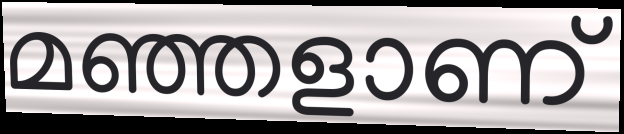
മഞ്ഞളാണ്